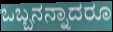
ಒಬ್ಬನನ್ನಾದರೂ